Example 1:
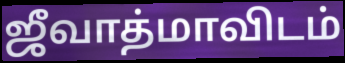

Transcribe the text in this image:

ஜீவாத்மாவிடம்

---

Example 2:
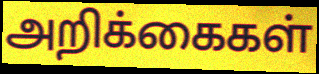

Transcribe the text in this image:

அறிக்கைகள்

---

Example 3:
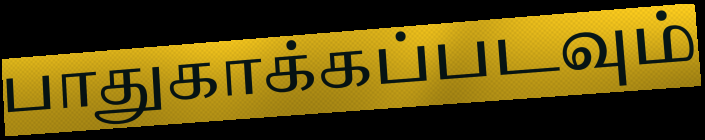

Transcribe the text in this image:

பாதுகாக்கப்படவும்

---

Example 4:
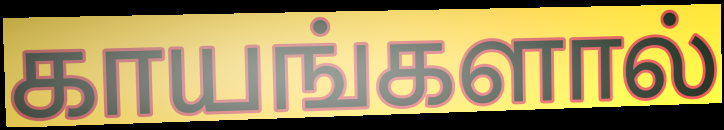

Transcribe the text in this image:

காயங்களால்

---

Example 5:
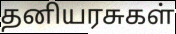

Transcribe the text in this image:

தனியரசுகள்